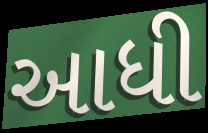
આધી